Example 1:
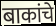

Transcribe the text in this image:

बाकांचे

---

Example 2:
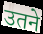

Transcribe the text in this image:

उतने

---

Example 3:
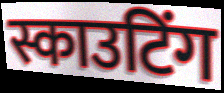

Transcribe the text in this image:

स्काउटिंग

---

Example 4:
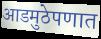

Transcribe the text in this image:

आडमुठेपणात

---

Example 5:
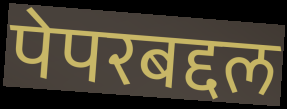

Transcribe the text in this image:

पेपरबद्दल